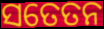
ସତେତନ